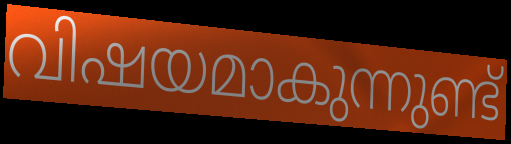
വിഷയമാകുന്നുണ്ട്